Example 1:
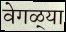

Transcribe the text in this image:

वेगळ्‌या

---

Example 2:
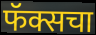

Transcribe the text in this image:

फॅक्सचा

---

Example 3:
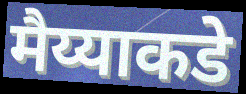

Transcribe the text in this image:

मैय्याकडे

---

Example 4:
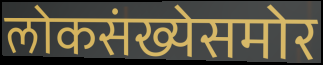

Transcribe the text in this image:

लोकसंख्येसमोर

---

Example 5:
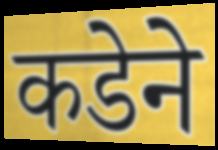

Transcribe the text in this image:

कडेने